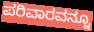
ಪರಿವಾರವನ್ನೂ